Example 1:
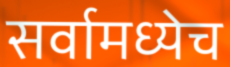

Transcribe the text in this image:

सर्वामध्येच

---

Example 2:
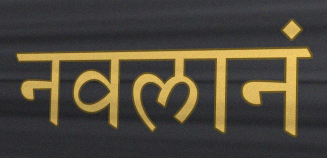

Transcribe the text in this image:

नवलानं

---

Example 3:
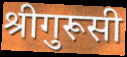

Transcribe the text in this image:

श्रीगुरूसी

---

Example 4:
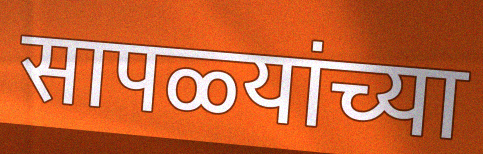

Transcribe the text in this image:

सापळ्यांच्या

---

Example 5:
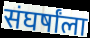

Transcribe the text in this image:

संघर्षांला